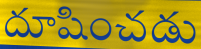
దూషించడు